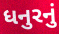
ધનુરનું